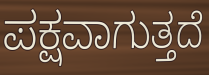
ಪಕ್ಷವಾಗುತ್ತದೆ